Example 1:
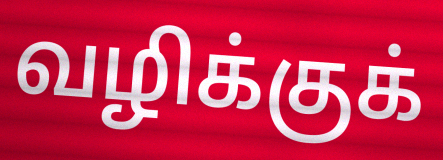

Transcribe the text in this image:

வழிக்குக்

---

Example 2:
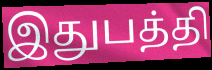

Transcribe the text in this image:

இதுபத்தி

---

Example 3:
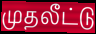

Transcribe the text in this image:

முதலீட்டு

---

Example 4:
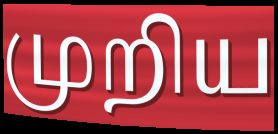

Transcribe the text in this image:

முறிய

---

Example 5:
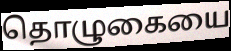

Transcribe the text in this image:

தொழுகையை